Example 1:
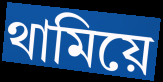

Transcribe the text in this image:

থামিয়ে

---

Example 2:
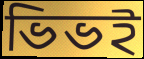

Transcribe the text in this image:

ভিভই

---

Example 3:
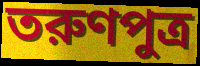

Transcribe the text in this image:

তরুণপুত্র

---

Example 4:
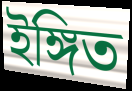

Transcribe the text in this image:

ইঙ্গিত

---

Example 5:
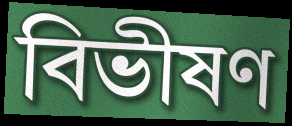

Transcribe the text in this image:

বিভীষণ